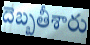
దెబ్బతీశారు